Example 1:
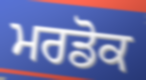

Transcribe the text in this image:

ਮਰਡੋਕ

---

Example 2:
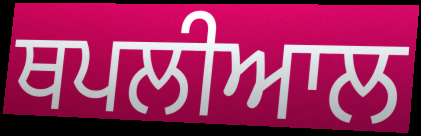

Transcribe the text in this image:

ਥਪਲੀਆਲ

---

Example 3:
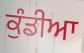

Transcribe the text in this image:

ਕੁੰਡੀਆ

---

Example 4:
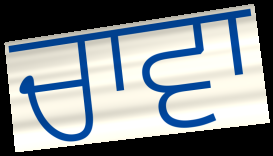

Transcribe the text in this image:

ਚਾਵਾ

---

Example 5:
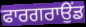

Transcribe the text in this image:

ਫਾਰਗਰਾਉਂਡ